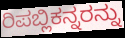
ರಿಪಬ್ಲಿಕನ್ನರನ್ನು